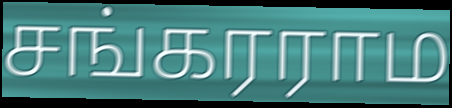
சங்கரராம